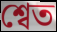
শ্বেত